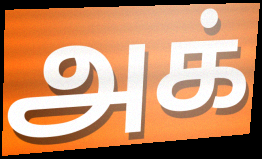
அக்